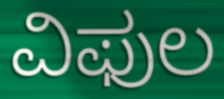
ವಿಫುಲ